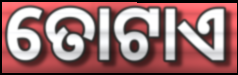
ତୋଟାଏ